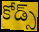
కోడ్స్